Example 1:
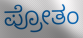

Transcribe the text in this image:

ಪ್ರೋತಂ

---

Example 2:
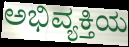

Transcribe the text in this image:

ಅಭಿವ್ಯಕ್ತಿಯ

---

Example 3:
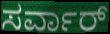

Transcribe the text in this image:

ಸರ್ವಾರ್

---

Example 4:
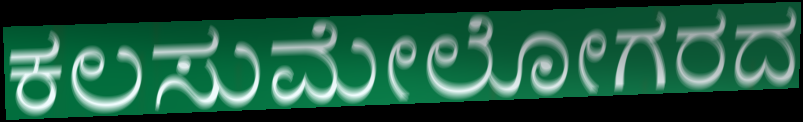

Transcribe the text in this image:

ಕಲಸುಮೇಲೋಗರದ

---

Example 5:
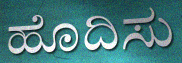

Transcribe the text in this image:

ಹೊದಿಸು